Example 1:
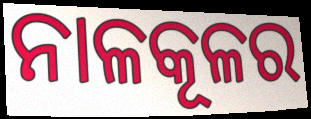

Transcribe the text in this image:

ନାଳକୂଳର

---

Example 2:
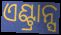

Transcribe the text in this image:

ଏଣ୍ଟ୍ରାନ୍ସ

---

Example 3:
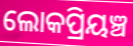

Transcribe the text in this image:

ଲୋକପ୍ରିୟଞ୍ଚ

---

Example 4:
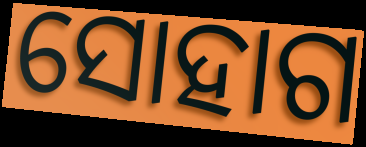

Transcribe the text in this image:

ସୋହାଗ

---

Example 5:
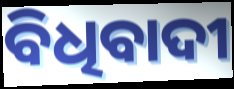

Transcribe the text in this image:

ବିଧିବାଦୀ